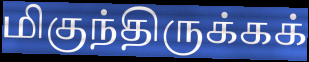
மிகுந்திருக்கக்